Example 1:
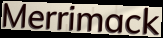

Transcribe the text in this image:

Merrimack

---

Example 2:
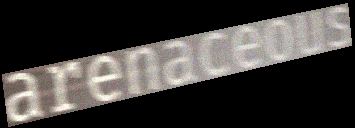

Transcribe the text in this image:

arenaceous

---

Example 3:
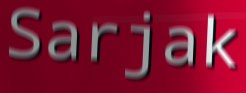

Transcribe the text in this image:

Sarjak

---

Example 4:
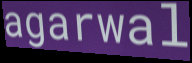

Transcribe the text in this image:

agarwal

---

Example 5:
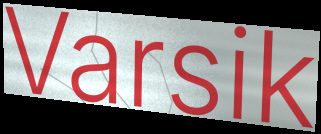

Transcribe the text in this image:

Varsik